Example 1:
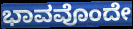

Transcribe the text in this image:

ಭಾವವೊಂದೇ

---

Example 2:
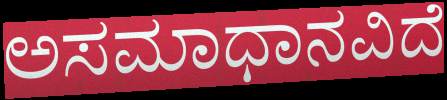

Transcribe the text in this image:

ಅಸಮಾಧಾನವಿದೆ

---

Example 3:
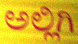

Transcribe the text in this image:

ಅಲ್ಲಿಗಿ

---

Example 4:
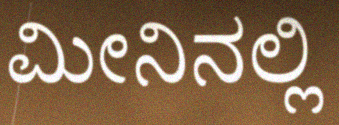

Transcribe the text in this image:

ಮೀನಿನಲ್ಲಿ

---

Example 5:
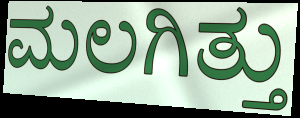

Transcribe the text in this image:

ಮಲಗಿತ್ತು